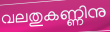
വലതുകണ്ണിനു